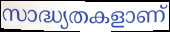
സാദ്ധ്യതകളാണ്